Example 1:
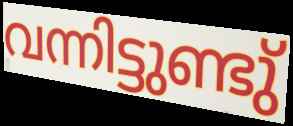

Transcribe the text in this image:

വന്നിട്ടുണ്ടു്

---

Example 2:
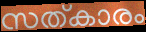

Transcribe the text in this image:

സത്കാരം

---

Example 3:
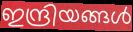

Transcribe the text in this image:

ഇന്ദ്രിയങ്ങൾ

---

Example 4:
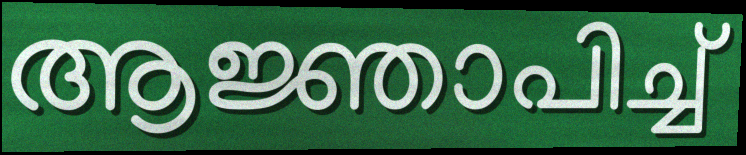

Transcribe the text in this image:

ആജ്ഞാപിച്ച്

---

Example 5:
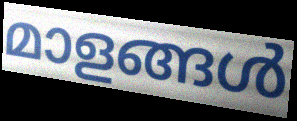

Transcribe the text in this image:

മാളങ്ങൾ